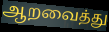
ஆறவைத்து